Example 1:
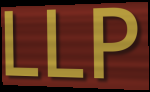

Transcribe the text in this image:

LLP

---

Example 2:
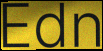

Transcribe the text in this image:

Edn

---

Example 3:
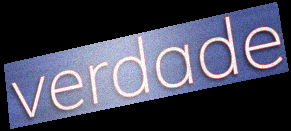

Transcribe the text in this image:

verdade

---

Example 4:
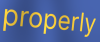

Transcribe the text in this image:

properly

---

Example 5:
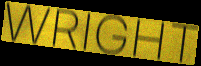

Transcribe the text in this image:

WRIGHT